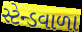
સ્ટેન્ડવાળા